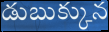
డుబుక్కున